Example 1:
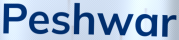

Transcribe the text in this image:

Peshwar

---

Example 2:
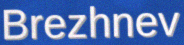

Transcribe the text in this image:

Brezhnev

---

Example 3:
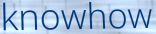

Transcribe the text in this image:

knowhow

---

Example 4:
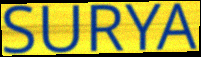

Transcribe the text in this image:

SURYA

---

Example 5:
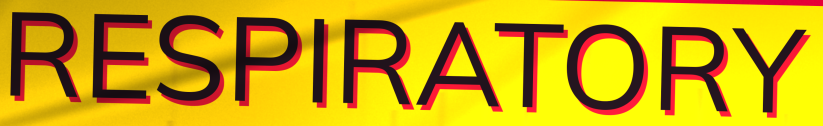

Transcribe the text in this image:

RESPIRATORY